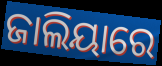
ଜାଲିୟାରେ